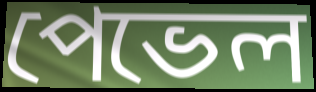
পেভেল